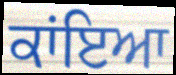
ਕਾਂਇਆ